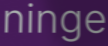
ninge